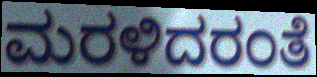
ಮರಳಿದರಂತೆ